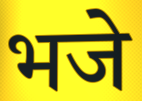
भजे